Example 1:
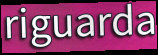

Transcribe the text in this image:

riguarda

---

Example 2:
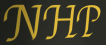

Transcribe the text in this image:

NHP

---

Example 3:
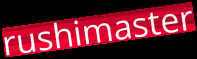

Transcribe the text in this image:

rushimaster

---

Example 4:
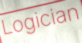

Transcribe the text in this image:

Logician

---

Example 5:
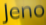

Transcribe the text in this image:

Jeno